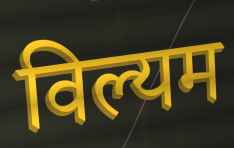
विल्यम